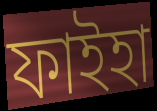
ফাইহা